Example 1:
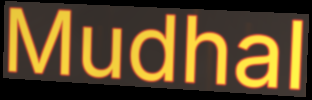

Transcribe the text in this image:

Mudhal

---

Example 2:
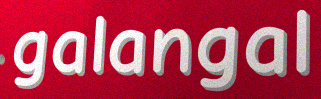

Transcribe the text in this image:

galangal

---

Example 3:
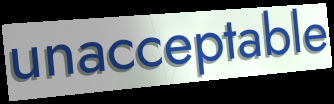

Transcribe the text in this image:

unacceptable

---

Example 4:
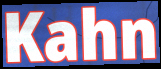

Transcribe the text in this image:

Kahn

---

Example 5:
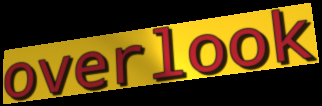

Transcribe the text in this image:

overlook